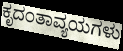
ಕೃದಂತಾವ್ಯಯಗಳು